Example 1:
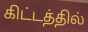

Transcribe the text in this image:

கிட்டத்தில்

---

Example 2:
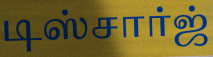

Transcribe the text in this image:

டிஸ்சார்ஜ்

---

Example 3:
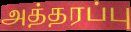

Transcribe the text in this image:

அத்தரப்பு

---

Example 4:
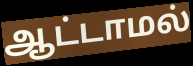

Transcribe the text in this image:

ஆட்டாமல்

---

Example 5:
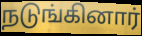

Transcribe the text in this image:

நடுங்கினார்